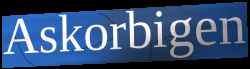
Askorbigen